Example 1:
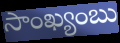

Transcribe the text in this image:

సాంఖ్యంబు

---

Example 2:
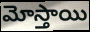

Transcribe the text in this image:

మోస్తాయి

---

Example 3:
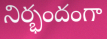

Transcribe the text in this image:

నిర్భందంగా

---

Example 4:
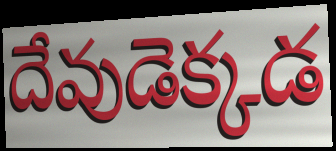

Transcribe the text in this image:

దేవుడెక్కడ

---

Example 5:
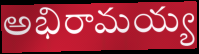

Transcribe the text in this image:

అభిరామయ్య